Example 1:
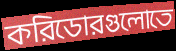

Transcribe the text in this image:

করিডোরগুলোতে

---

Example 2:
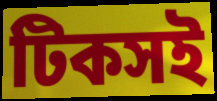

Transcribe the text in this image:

টিকসই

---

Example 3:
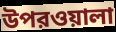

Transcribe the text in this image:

উপরওয়ালা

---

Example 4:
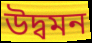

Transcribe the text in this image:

উদ্বমন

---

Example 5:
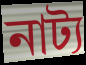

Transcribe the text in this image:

নাট্য